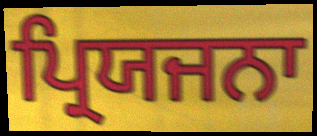
ਪ੍ਰਿਯਜਨਾ